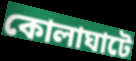
কোলাঘাটে